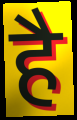
है